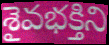
శైవభక్తిని